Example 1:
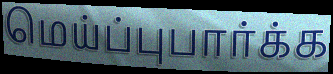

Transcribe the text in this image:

மெய்ப்புபார்க்க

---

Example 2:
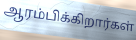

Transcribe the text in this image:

ஆரம்பிக்கிறார்கள்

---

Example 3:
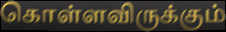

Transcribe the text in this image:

கொள்ளவிருக்கும்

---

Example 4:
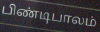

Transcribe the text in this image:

பிண்டிபாலம்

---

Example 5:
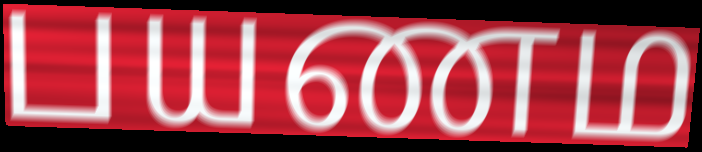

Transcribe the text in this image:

பயணம